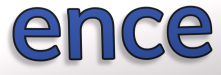
ence